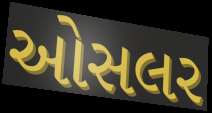
ઓસલર